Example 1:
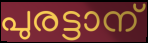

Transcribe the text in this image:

പുരട്ടാന്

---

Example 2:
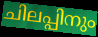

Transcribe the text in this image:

ചിലപ്പിനും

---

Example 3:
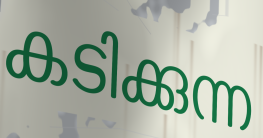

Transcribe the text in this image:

കടിക്കുന്ന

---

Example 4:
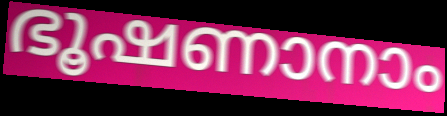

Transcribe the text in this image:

ഭൂഷണാനാം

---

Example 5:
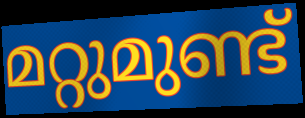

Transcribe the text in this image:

മറ്റുമുണ്ട്